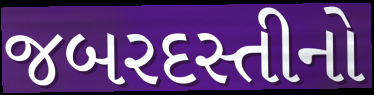
જબરદસ્તીનો